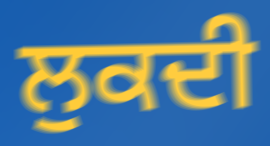
ਲੁਕਦੀ